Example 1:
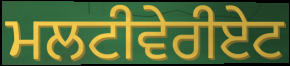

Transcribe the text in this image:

ਮਲਟੀਵੇਰੀਏਟ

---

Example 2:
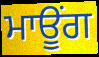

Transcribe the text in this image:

ਮਾਊਂਗ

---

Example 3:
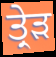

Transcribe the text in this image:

ਤ੍ਰੇੜ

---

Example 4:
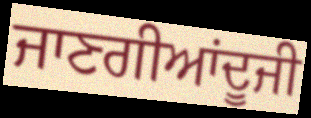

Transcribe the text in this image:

ਜਾਣਗੀਆਂਦੂਜੀ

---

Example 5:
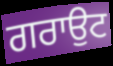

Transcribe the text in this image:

ਗਰਾਉਟ